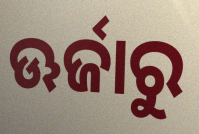
ଊର୍ଜାରୁ